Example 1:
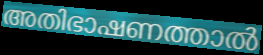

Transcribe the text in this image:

അതിഭാഷണത്താൽ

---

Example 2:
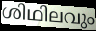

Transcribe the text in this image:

ശിഥിലവും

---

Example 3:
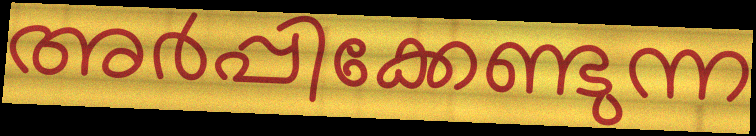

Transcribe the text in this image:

അർപ്പിക്കേണ്ടുന്ന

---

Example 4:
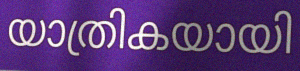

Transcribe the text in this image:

യാത്രികയായി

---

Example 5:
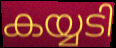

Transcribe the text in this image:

കയ്യടി